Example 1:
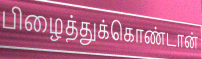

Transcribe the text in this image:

பிழைத்துக்கொண்டான்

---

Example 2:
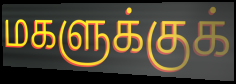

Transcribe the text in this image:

மகளுக்குக்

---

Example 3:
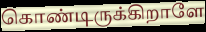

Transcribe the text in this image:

கொண்டிருக்கிறாளே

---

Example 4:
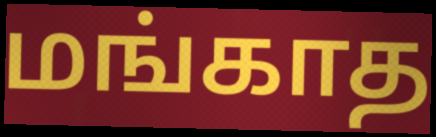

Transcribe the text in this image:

மங்காத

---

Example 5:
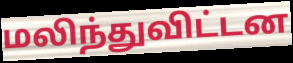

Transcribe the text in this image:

மலிந்துவிட்டன